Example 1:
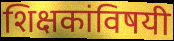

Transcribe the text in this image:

शिक्षकांविषयी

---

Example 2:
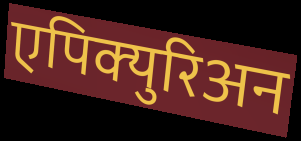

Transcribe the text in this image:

एपिक्युरिअन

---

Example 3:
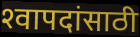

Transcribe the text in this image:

श्वापदांसाठी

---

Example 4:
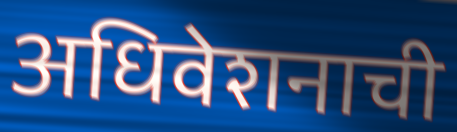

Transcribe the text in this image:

अधिवेशनाची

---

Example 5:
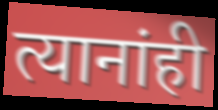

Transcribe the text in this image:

त्यानांही